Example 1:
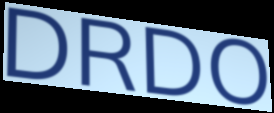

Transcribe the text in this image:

DRDO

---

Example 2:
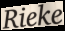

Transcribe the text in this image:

Rieke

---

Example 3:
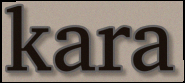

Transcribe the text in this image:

kara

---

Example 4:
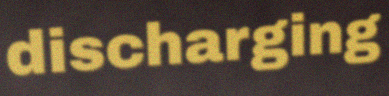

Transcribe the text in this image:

discharging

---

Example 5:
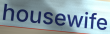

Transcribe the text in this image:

housewife